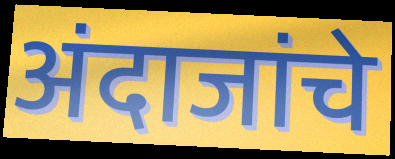
अंदाजांचे